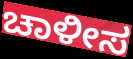
ಚಾಳೀಸ